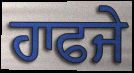
ਹਾਫਜੇ